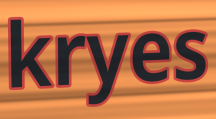
kryes